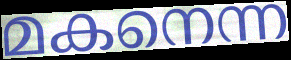
മകനെന്ന